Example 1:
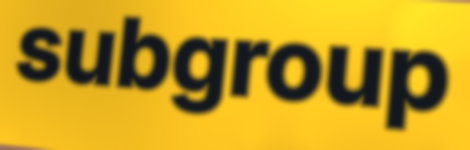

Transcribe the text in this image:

subgroup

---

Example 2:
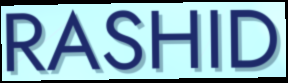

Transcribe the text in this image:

RASHID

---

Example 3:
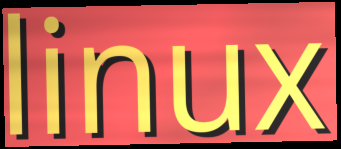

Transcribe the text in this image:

linux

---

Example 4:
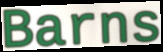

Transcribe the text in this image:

Barns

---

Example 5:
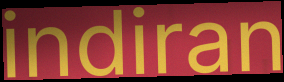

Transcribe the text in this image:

indiran